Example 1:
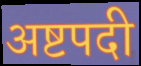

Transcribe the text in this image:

अष्टपदी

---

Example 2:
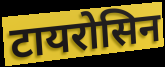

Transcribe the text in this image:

टायरोसिन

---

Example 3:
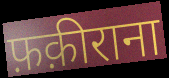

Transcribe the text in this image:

फ़क़ीराना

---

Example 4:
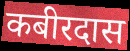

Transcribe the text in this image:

कबीरदास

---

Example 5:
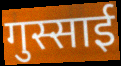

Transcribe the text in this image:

गुस्साई